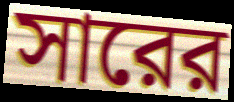
সারের